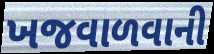
ખજવાળવાની